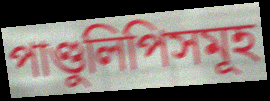
পাণ্ডুলিপিসমূহ